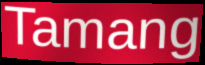
Tamang